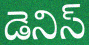
డెనిస్